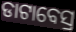
ଡାଟାବେସ୍ର